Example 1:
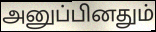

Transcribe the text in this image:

அனுப்பினதும்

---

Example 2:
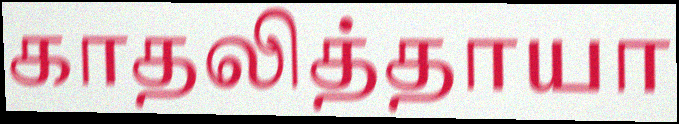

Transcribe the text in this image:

காதலித்தாயா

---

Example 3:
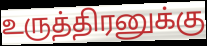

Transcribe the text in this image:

உருத்திரனுக்கு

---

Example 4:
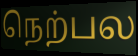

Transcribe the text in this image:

நெற்பல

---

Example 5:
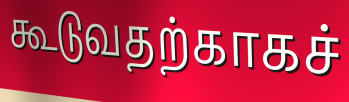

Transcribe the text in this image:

கூடுவதற்காகச்